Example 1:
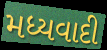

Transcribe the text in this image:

મધ્યવાદી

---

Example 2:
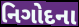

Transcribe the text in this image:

નિગોદના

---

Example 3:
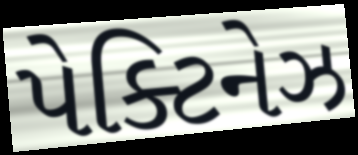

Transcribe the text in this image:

પેક્ટિનેઝ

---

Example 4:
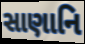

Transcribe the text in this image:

સાણાનિ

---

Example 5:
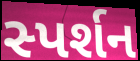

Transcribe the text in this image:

સ્પર્શન